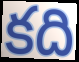
కది